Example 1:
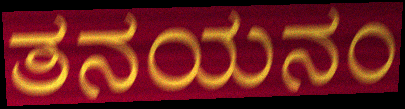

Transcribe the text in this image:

ತನಯನಂ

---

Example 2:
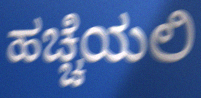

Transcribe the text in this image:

ಹಚ್ಚೆಯಲಿ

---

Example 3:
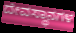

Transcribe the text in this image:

ದೇವಸ್ಥಾನಗಳ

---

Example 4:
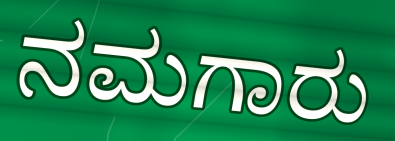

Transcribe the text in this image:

ನಮಗಾರು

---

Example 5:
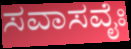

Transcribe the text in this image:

ಸವಾಸವೈಃ